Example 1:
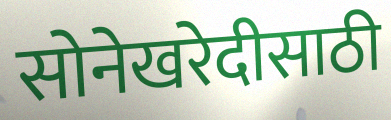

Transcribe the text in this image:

सोनेखरेदीसाठी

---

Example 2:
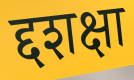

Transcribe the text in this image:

द्दशक्षा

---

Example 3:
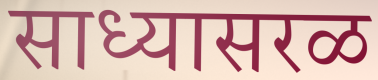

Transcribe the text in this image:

साध्यासरळ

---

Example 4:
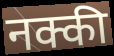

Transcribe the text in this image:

नक्की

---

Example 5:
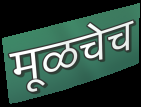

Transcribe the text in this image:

मूळचेच